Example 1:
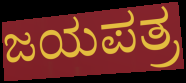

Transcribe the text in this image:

ಜಯಪತ್ರ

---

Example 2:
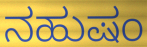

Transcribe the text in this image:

ನಹುಷಂ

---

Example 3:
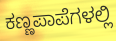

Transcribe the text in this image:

ಕಣ್ಣಪಾಪೆಗಳಲ್ಲಿ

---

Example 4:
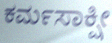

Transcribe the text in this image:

ಕರ್ಮಸಾಕ್ಷೀ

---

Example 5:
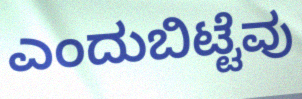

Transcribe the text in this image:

ಎಂದುಬಿಟ್ಟೆವು